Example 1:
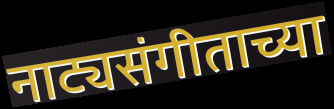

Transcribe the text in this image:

नाट्यसंगीताच्या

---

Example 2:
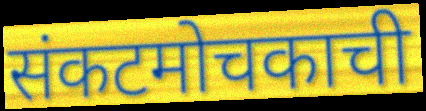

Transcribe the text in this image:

संकटमोचकाची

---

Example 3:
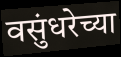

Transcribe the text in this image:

वसुंधरेच्या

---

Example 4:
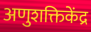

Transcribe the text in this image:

अणुशक्तिकेंद्र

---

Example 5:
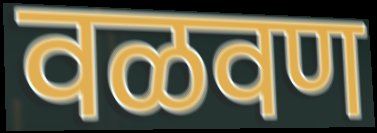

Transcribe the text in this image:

वळवण